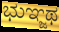
ಭುಞ್ಜಥ